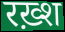
रख़्श